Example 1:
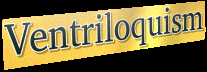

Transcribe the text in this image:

Ventriloquism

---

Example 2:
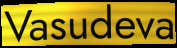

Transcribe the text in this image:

Vasudeva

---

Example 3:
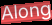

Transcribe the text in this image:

Along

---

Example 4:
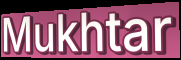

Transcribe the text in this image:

Mukhtar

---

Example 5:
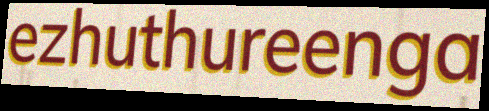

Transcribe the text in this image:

ezhuthureenga